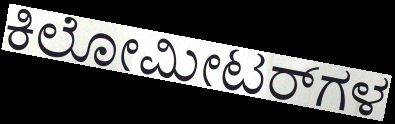
ಕಿಲೋಮೀಟರ್‌ಗಳ